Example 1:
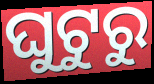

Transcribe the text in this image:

ଘୁଟୁରୁ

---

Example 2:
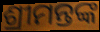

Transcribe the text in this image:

ଶ୍ରୀମନ୍ତଙ୍କ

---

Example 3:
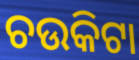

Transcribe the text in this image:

ଚଉକିଟା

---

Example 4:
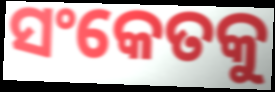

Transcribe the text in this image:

ସଂକେତକୁ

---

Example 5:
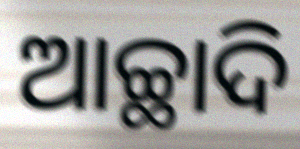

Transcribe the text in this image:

ଆଚ୍ଛାଦି